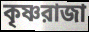
কৃষ্ণরাজা